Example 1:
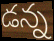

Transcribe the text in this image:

డన్న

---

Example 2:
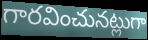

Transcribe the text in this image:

గారవించునట్లుగా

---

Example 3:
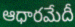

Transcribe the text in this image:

ఆధారమేదీ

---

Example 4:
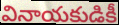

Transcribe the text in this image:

వినాయకుడికీ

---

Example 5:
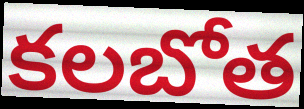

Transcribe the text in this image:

కలబోత